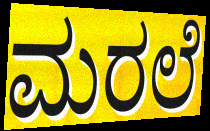
ಮರಲೆ